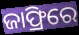
ଜାଫ୍ରିରେ